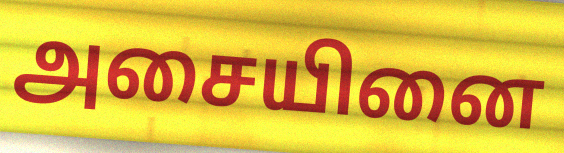
அசையினை